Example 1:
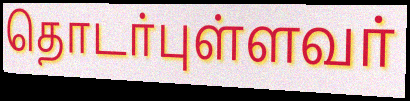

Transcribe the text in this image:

தொடர்புள்ளவர்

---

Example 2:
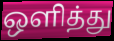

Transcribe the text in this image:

ஒளித்து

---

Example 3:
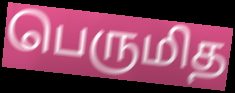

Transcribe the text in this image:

பெருமித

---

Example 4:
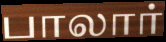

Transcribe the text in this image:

பாலார்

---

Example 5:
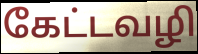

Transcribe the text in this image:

கேட்டவழி